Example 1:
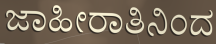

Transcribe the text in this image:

ಜಾಹೀರಾತಿನಿಂದ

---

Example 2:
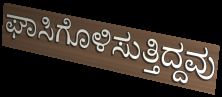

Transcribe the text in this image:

ಘಾಸಿಗೊಳಿಸುತ್ತಿದ್ದವು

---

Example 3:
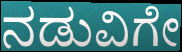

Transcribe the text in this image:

ನಡುವಿಗೇ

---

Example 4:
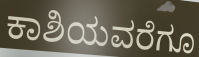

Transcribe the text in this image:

ಕಾಶಿಯವರೆಗೂ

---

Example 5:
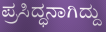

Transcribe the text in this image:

ಪ್ರಸಿದ್ಧನಾಗಿದ್ದು